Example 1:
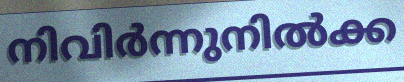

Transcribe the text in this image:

നിവിർന്നുനിൽക്ക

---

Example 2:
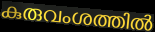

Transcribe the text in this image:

കുരുവംശത്തിൽ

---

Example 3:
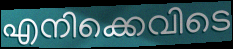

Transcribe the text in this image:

എനിക്കെവിടെ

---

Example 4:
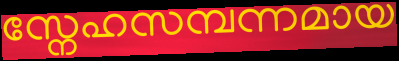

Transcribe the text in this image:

സ്നേഹസമ്പന്നമായ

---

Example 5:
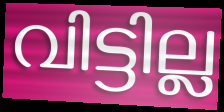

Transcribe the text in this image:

വിട്ടില്ല